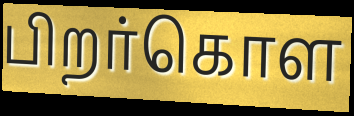
பிறர்கொள